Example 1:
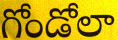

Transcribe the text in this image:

గోండోలా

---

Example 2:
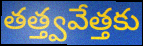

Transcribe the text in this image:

తత్త్వవేత్తకు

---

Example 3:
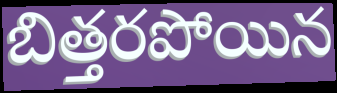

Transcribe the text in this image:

బిత్తరపోయిన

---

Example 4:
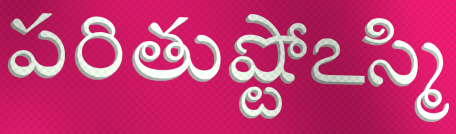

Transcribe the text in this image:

పరితుష్టోఽస్మి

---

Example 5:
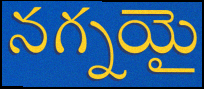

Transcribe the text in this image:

నగ్నయై